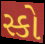
સ્કો